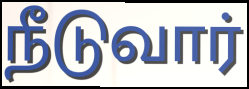
நீடுவார்